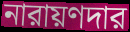
নারায়ণদার